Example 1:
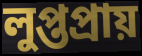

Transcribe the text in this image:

লুপ্তপ্ৰায়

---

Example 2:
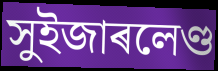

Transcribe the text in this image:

সুইজাৰলেণ্ড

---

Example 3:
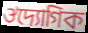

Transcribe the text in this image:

ঔদ্যোগিক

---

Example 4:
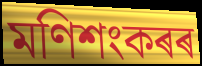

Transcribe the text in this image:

মণিশংকৰৰ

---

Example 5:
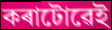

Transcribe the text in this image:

কৰাটোৱেই